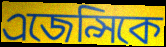
এজেন্সিকে